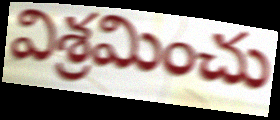
విశ్రమించు